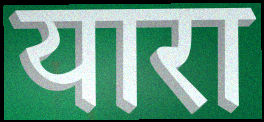
यारा